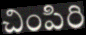
చింపిరి